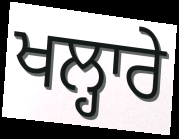
ਖਲ੍ਹਾਰੇ